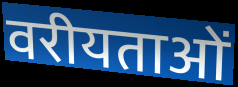
वरीयताओं